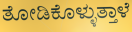
ತೋಡಿಕೊಳ್ಳುತ್ತಾಳೆ